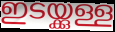
ഇടയ്ക്കുള്ള